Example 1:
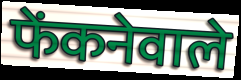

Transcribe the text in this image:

फेंकनेवाले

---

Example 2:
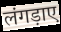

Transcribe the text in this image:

लंगड़ाए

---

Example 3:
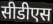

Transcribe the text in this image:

सीडीएस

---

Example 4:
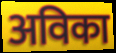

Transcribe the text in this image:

अविका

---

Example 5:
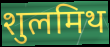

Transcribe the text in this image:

शुलमिथ